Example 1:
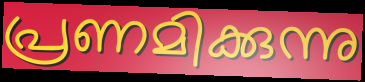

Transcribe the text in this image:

പ്രണമിക്കുന്നു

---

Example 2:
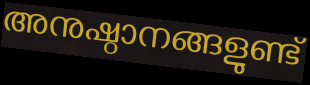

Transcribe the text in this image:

അനുഷ്ഠാനങ്ങളുണ്ട്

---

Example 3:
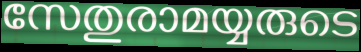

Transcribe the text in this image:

സേതുരാമയ്യരുടെ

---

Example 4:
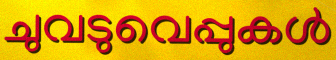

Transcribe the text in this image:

ചുവടുവെപ്പുകൾ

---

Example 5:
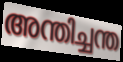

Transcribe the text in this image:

അന്തിച്ചന്ത